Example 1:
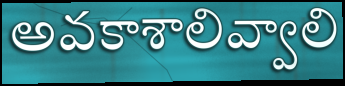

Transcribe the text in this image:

అవకాశాలివ్వాలి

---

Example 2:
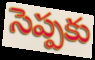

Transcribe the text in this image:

సెప్పకు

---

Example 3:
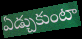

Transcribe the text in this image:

ఏడ్చుకుంటా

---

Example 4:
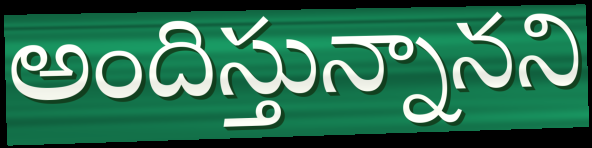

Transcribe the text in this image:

అందిస్తున్నానని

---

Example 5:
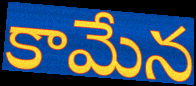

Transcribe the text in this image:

కామేన